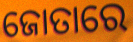
ଜୋତାରେ